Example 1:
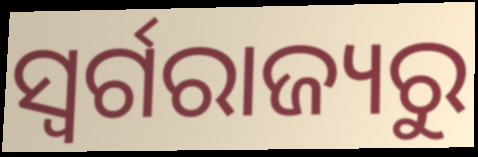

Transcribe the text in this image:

ସ୍ବର୍ଗରାଜ୍ୟରୁ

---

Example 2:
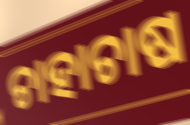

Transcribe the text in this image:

ଚାହାଚାଷ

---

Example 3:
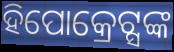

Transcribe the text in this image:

ହିପୋକ୍ରେଟ୍ସଙ୍କ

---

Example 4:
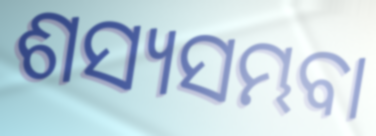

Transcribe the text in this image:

ଶସ୍ୟସମ୍ଭବା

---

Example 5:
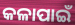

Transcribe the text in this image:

କଳାପାଇଁ